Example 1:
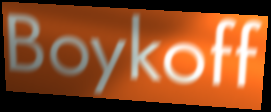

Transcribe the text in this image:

Boykoff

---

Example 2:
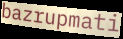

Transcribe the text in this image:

bazrupmati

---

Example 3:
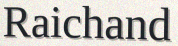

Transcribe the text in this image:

Raichand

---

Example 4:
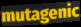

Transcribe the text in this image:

mutagenic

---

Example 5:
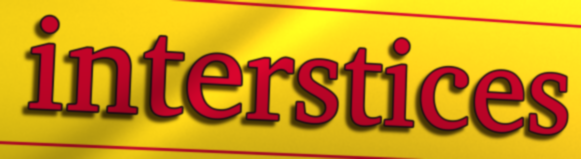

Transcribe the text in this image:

interstices